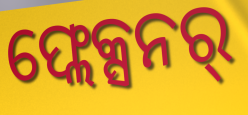
ଫ୍ଲେକ୍ସନର୍